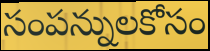
సంపన్నులకోసం